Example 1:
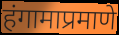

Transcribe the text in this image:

हंगामाप्रमाणे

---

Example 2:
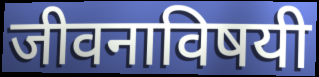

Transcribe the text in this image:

जीवनाविषयी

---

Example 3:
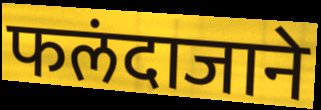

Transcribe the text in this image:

फलंदाजाने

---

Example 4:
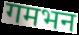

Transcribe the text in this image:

गमभन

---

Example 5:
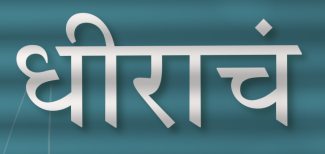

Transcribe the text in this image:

धीराचं